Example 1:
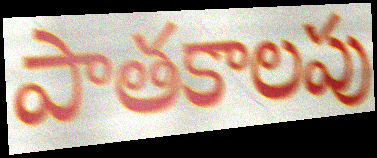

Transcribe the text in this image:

పాతకాలపు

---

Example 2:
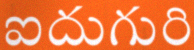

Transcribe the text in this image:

ఐదుగురి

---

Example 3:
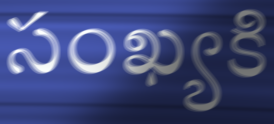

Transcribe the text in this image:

సంఖ్యకి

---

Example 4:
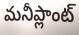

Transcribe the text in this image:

మనీప్లాంట్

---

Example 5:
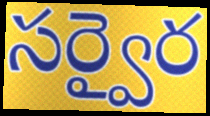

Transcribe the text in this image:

సర్వైర